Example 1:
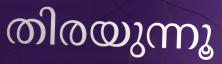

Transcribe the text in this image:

തിരയുന്നൂ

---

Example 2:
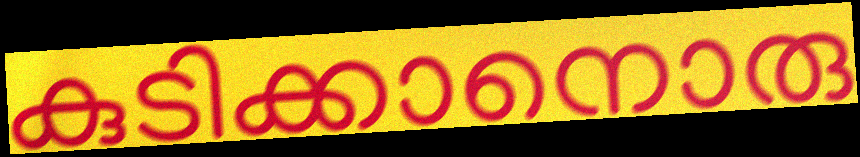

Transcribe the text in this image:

കുടിക്കാനൊരു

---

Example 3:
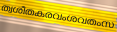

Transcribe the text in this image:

ത്വശീതകരവംശവതംസ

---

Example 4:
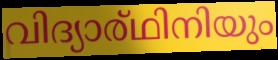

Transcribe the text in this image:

വിദ്യാര്ഥിനിയും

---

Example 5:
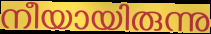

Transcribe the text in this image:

നീയായിരുന്നു